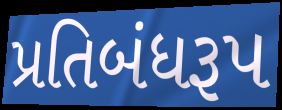
પ્રતિબંધરૂપ